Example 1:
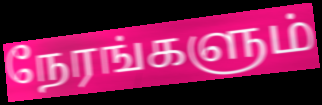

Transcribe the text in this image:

நேரங்களும்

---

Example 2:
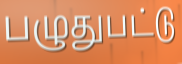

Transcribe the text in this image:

பழுதுபட்டு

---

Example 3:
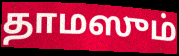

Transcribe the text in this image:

தாமஸும்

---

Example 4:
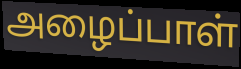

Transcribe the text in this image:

அழைப்பாள்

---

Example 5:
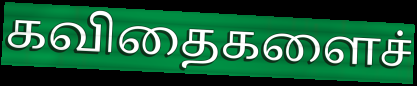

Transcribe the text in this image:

கவிதைகளைச்